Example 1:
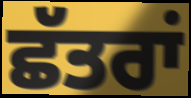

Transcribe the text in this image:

ਛੱਤਰਾਂ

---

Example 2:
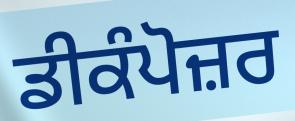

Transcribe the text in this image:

ਡੀਕੰਪੋਜ਼ਰ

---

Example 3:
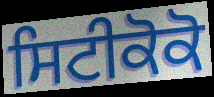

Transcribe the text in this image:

ਸਿਟੀਕੋਕੋ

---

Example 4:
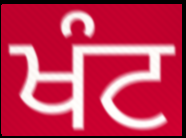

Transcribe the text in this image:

ਖੰਟ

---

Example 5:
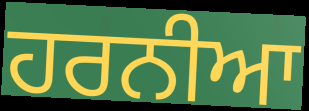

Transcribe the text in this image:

ਹਰਨੀਆ